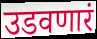
उडवणारं